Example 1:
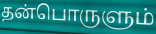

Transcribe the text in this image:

தன்பொருளும்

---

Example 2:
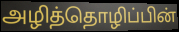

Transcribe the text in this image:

அழித்தொழிப்பின்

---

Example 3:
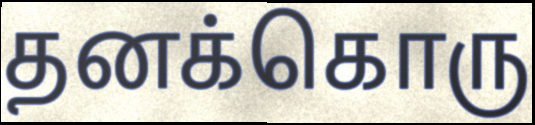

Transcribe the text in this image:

தனக்கொரு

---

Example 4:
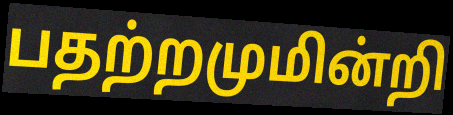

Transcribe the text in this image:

பதற்றமுமின்றி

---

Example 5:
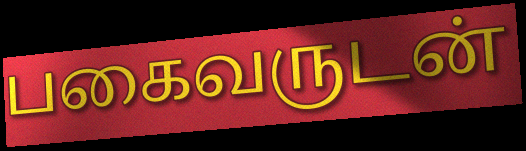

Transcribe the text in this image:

பகைவருடன்